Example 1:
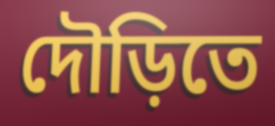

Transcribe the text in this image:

দৌড়িতে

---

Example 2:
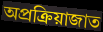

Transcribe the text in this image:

অপ্রক্রিয়াজাত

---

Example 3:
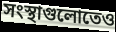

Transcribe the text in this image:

সংস্থাগুলোতেও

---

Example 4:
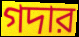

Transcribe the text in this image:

গদার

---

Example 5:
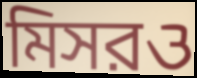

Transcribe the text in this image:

মিসরও